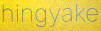
hingyake